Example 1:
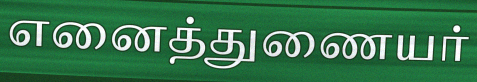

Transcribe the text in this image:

எனைத்துணையர்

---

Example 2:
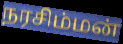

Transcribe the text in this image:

நரசிம்மன்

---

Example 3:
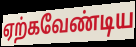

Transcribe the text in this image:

ஏற்கவேண்டிய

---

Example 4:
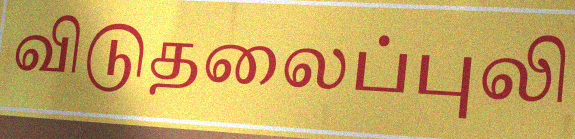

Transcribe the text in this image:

விடுதலைப்புலி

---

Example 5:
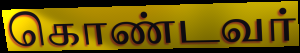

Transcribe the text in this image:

கொண்டவர்